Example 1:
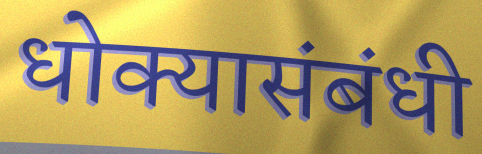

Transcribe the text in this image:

धोक्यासंबंधी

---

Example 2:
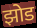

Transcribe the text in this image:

झोड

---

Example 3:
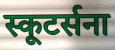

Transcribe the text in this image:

स्कूटर्सना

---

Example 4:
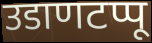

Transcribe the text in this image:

उडाणटप्पू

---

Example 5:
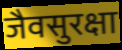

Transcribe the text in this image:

जैवसुरक्षा